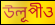
উলূপীও